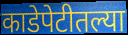
काडेपेटीतल्या